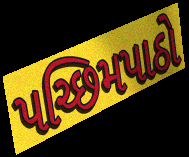
પચ્છિમપાઠો